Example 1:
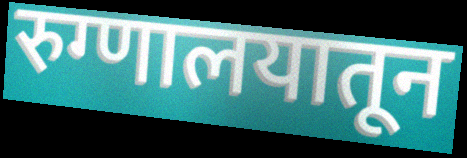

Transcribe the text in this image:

रुग्णालयातून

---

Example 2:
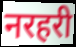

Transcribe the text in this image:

नरहरी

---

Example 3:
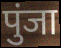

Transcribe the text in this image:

पुंजा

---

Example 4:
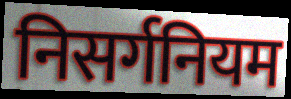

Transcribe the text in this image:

निसर्गनियम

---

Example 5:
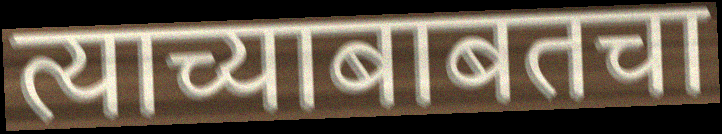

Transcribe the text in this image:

त्याच्याबाबतचा